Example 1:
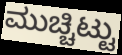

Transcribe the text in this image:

ಮುಚ್ಚಿಟ್ಟು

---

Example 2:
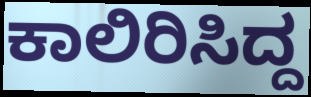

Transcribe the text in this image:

ಕಾಲಿರಿಸಿದ್ದ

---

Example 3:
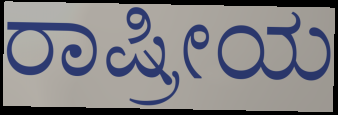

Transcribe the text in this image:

ರಾಷ್ರೀಯ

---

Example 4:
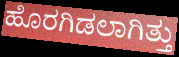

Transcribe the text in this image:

ಹೊರಗಿಡಲಾಗಿತ್ತು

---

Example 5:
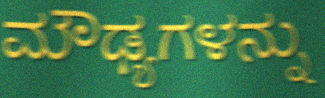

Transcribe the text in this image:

ಮೌಢ್ಯಗಳನ್ನು